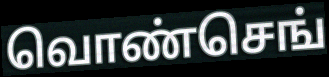
வொண்செங்